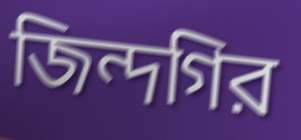
জিন্দগির